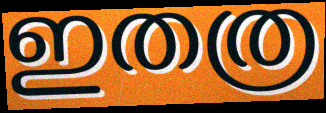
ഇതത്ര